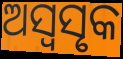
ଅସ୍ୱସୃକ